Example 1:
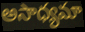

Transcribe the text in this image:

అసాధ్యమా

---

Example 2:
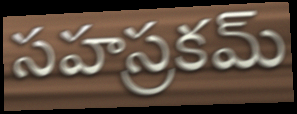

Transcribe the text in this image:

సహస్రకమ్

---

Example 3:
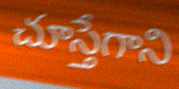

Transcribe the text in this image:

చూస్తేగాని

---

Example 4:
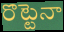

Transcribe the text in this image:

రొట్టెనా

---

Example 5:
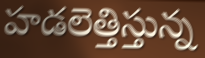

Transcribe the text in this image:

హడలెత్తిస్తున్న